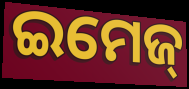
ଇମେଜ୍